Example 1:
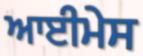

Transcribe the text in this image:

ਆਈਮੇਸ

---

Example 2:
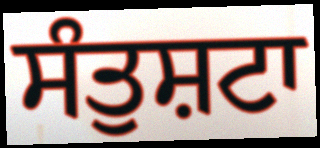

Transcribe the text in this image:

ਸੰਤੁਸ਼ਟਾ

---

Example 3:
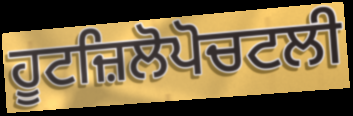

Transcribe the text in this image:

ਹੂਟਜ਼ਿਲੋਪੋਚਟਲੀ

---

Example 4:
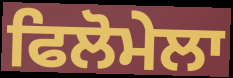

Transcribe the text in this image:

ਫਿਲੋਮੇਲਾ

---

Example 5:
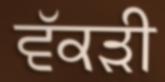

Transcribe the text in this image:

ਵੱਕੜੀ